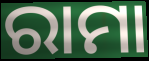
ରାମା